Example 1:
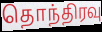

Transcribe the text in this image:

தொந்திரவு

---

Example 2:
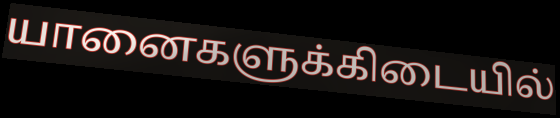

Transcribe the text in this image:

யானைகளுக்கிடையில்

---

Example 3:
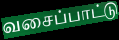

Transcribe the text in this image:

வசைப்பாட்டு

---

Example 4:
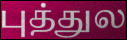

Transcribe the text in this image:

புத்துல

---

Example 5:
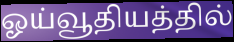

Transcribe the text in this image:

ஓய்வூதியத்தில்